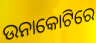
ଉନାକୋଟିରେ